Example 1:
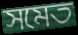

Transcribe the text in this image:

সমেত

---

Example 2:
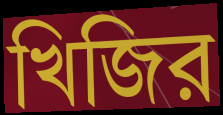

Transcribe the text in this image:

খিজির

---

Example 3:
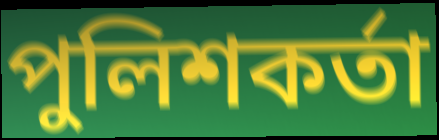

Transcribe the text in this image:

পুলিশকর্তা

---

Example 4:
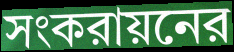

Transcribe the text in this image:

সংকরায়নের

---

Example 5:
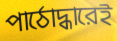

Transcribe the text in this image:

পাঠোদ্ধারেই